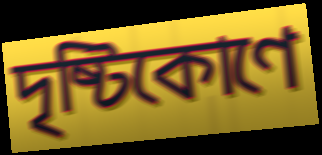
দৃষ্টিকোণে